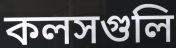
কলসগুলি